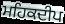
ਮਹਿਕਦੀਪ